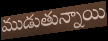
ముడుతున్నాయి